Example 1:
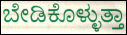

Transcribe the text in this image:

ಬೇಡಿಕೊಳ್ಳುತ್ತಾ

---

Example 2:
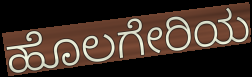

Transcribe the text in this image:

ಹೊಲಗೇರಿಯ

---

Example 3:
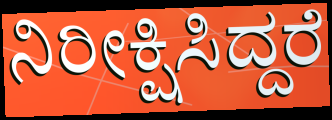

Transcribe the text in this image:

ನಿರೀಕ್ಷಿಸಿದ್ದರೆ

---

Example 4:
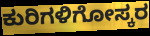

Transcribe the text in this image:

ಕುರಿಗಳಿಗೋಸ್ಕರ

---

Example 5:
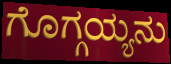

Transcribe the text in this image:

ಗೊಗ್ಗಯ್ಯನು